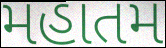
મહાતમ